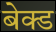
बेक्ड